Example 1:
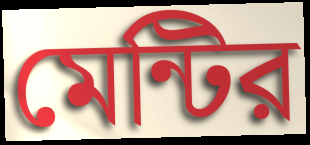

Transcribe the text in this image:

মেন্টির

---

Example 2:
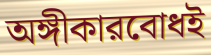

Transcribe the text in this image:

অঙ্গীকারবোধই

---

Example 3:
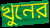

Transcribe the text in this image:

খুনের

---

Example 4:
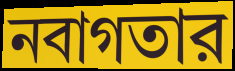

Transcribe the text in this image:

নবাগতার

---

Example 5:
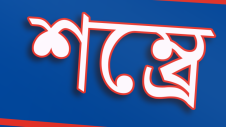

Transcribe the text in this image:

শম্ব্রে